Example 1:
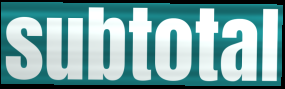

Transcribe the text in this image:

subtotal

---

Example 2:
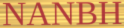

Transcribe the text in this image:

NANBH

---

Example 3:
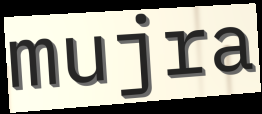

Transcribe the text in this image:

mujra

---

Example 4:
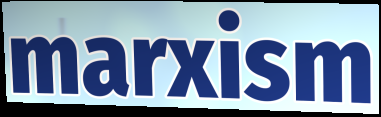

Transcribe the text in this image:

marxism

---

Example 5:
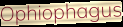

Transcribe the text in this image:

Ophiophagus